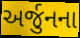
અર્જુનના